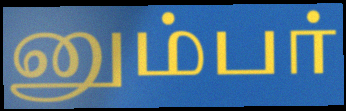
னும்பர்